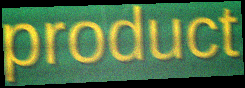
product